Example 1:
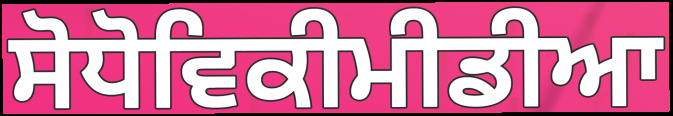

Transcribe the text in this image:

ਸੋਧੋਵਿਕੀਮੀਡੀਆ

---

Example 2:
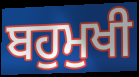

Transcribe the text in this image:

ਬਹੁਮੁਖੀ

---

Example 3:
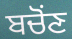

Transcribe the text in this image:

ਬਚੋਂਣ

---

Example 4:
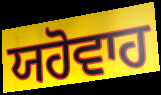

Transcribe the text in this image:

ਯਹੋਵਾਹ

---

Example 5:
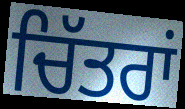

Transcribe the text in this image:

ਚਿੱਤਰਾਂ